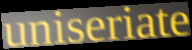
uniseriate